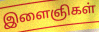
இளைஞிகள்